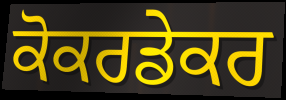
ਕੋਕਰਡੇਕਰ